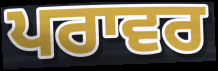
ਪਰਾਵਰ